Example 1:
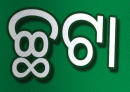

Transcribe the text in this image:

ଚ୍ଛଟା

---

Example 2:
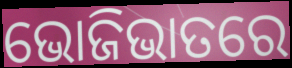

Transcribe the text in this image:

ଭୋଜିଭାତରେ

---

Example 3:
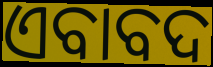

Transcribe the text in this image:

ଏବାବଦ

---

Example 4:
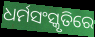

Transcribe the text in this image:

ଧର୍ମସଂସ୍କୃତିରେ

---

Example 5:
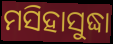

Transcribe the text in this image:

ମସିହାସୁଦ୍ଧା